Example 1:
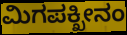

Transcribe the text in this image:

ಮಿಗಪಕ್ಖೀನಂ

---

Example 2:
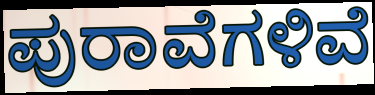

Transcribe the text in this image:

ಪುರಾವೆಗಳಿವೆ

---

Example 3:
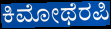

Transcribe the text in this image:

ಕಿಮೋಥೆರಪಿ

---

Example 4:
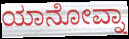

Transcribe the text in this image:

ಯಾನೋವ್ನಾ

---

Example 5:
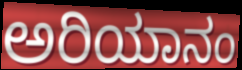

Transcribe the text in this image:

ಅರಿಯಾನಂ